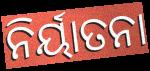
ନିର୍ୟାତନା